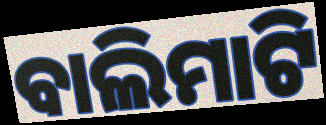
ବାଲିମାଟି